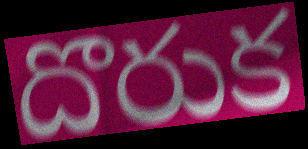
దొరుక